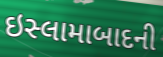
ઇસ્લામાબાદની